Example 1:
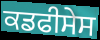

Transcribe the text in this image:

ਕਡਫੀਸੇਸ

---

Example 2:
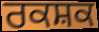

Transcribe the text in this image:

ਰਕਸ਼ਕ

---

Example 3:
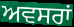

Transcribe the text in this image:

ਅਵਸਰਾਂ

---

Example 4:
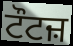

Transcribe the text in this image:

ਟੌਟਜ਼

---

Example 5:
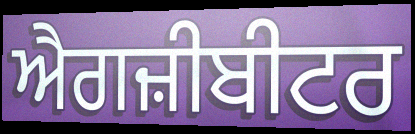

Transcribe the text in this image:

ਐਗਜ਼ੀਬੀਟਰ